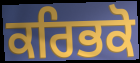
ਕਰਿਭਕੋ